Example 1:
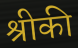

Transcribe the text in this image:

श्रीकी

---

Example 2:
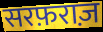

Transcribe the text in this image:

सरफ़राज़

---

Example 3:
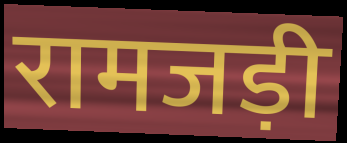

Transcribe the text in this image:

रामजड़ी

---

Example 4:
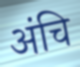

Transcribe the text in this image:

अंचि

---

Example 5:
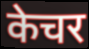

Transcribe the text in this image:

केचर